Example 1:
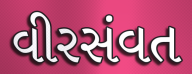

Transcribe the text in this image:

વીરસંવત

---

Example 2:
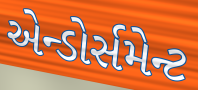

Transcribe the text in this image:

એન્ડોર્સમેન્ટ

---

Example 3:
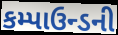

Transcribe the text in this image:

કમ્પાઉન્ડની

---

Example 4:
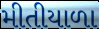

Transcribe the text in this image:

મીતીયાળા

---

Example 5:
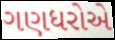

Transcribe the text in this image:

ગણધરોએ